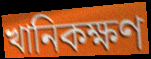
খানিকক্ষণ